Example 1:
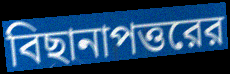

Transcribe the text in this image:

বিছানাপত্তরের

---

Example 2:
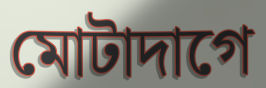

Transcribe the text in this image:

মোটাদাগে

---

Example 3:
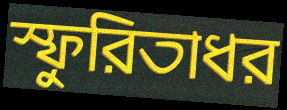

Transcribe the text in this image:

স্ফুরিতাধর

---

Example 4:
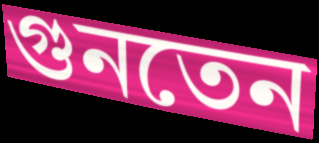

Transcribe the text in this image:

গুনতেন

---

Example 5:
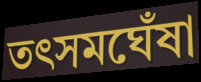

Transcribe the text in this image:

তৎসমঘেঁষা